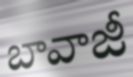
బావాజీ